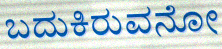
ಬದುಕಿರುವನೋ